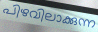
പിഴവിലാക്കുന്ന